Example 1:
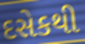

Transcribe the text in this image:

દસેકથી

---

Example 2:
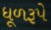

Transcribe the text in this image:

ધૂળરૂપે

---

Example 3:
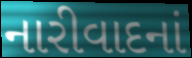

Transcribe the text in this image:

નારીવાદનાં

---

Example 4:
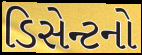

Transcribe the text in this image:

ડિસેન્ટનો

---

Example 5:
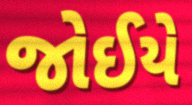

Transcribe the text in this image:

જોઈયે